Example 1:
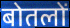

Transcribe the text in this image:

बोतलों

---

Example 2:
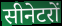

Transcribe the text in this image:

सीनेटरों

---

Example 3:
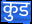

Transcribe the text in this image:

कुड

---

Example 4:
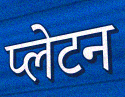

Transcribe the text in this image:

प्लेटन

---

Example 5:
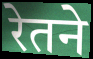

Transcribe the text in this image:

रेतने